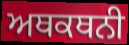
ਅਥਕਥਨੀ